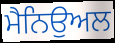
ਮੈਨਿਉਅਲ